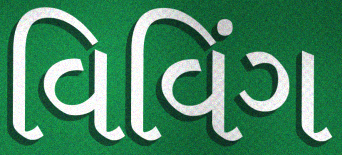
વિવિંગ